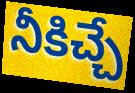
నీకిచ్చే